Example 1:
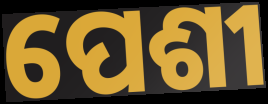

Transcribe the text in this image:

ପେଶୀ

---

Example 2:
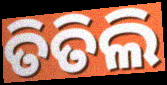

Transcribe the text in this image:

ତିତିଲି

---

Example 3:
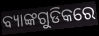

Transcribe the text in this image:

ବ୍ୟାଙ୍କଗୁଡିକରେ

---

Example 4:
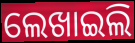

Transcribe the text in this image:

ଲେଖାଇଲି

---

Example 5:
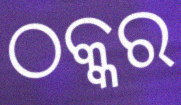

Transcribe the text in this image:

ଠକ୍କର